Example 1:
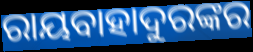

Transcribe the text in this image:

ରାୟବାହାଦୁରଙ୍କର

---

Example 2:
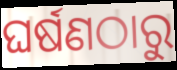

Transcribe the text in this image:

ଘର୍ଷଣଠାରୁ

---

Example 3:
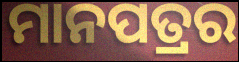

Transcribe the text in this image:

ମାନପତ୍ରର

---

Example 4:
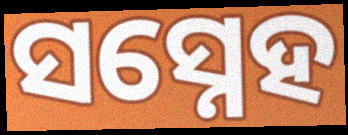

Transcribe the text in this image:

ସସ୍ନେହ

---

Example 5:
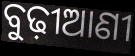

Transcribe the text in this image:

ବୁଢ଼ୀଆଣୀ